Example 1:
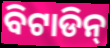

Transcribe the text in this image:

ବିଟାଡିନ୍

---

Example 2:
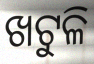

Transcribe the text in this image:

ଖଟୁଳି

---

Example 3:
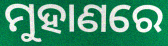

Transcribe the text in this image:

ମୁହାଣରେ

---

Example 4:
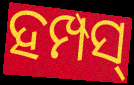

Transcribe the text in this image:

ହମ୍ପସ୍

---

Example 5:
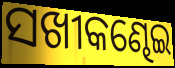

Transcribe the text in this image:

ସଖୀକଣ୍ଢେଇ